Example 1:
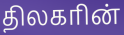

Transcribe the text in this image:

திலகரின்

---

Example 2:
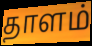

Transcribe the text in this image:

தாளம்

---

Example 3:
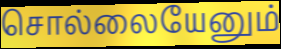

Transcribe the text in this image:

சொல்லையேனும்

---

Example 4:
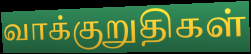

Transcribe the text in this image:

வாக்குறுதிகள்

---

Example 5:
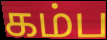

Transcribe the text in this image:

கம்ப